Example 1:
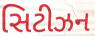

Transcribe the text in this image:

સિટીઝન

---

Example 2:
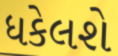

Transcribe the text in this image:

ધકેલશે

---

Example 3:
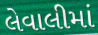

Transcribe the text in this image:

લેવાલીમાં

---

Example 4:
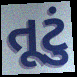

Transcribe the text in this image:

તૂટું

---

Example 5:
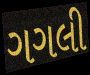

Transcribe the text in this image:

ગગલી